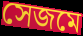
সেজমে